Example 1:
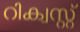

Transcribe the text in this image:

റിക്വസ്റ്റ്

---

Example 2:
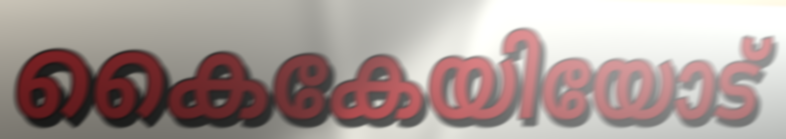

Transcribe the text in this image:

കൈകേയിയോട്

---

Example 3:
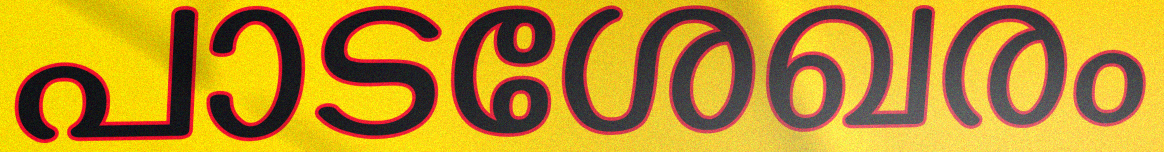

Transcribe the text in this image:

പാടശേഖരം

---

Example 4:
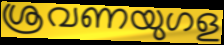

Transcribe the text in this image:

ശ്രവണയുഗള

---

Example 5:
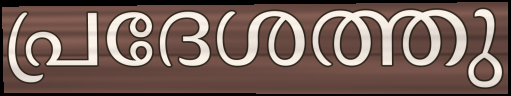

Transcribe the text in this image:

പ്രദേശത്തു